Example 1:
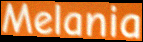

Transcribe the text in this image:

Melania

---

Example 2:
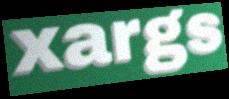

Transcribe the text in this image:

xargs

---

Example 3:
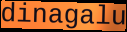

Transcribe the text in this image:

dinagalu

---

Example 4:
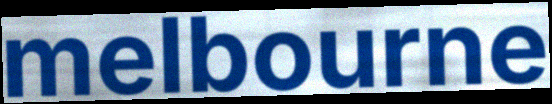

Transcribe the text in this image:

melbourne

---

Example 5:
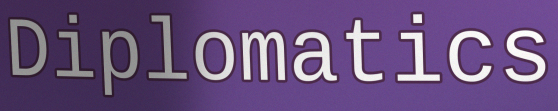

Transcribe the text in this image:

Diplomatics